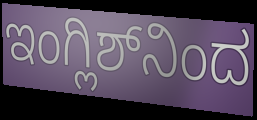
ಇಂಗ್ಲಿಶ್‌ನಿಂದ